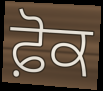
ਫ਼ੋਕ